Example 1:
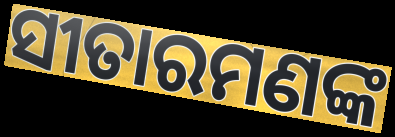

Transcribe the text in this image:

ସୀତାରମଣଙ୍କ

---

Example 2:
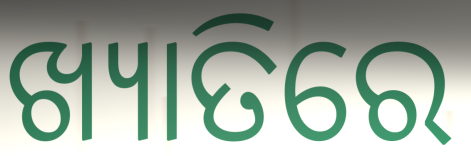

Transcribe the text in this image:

ଖ୍ୟାତିରେ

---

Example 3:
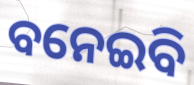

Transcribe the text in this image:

ବନେଇବି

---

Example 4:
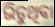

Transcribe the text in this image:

ଭିଡୁଥିବା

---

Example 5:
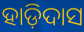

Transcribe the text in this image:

ହାଡ଼ିଦାସ